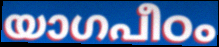
യാഗപീഠം